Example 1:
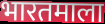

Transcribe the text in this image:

भारतमाला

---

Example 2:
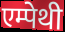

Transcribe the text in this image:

एम्पेथी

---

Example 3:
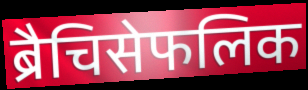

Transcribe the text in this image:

ब्रैचिसेफलिक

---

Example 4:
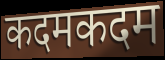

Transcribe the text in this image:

कदमकदम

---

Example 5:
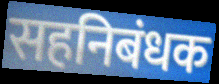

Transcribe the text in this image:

सहनिबंधक